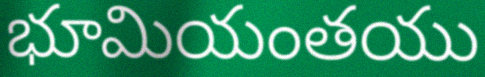
భూమియంతయు